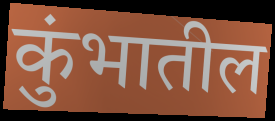
कुंभातील